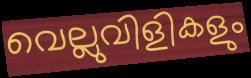
വെല്ലുവിളികളും